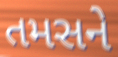
તમસને